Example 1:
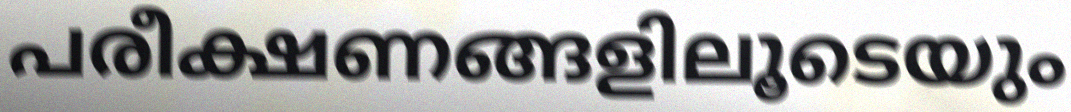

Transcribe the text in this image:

പരീക്ഷണങ്ങളിലൂടെയും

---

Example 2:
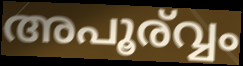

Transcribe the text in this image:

അപൂര്വ്വം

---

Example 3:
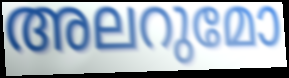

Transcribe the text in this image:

അലറുമോ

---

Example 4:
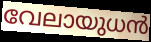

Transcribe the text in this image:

വേലായുധൻ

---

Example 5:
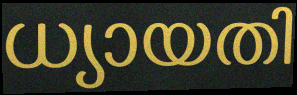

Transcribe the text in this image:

ധ്യായതി